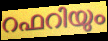
റഫറിയും